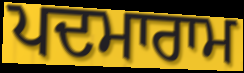
ਪਦਮਾਰਾਮ